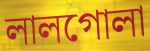
লালগোলা